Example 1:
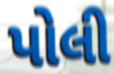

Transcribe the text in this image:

પોલી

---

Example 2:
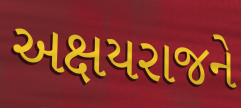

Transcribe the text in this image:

અક્ષયરાજને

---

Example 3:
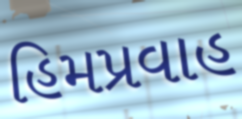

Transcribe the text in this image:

હિમપ્રવાહ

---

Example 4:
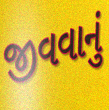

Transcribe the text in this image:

જીવવાનું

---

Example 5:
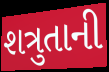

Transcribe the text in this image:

શત્રુતાની